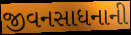
જીવનસાધનાની